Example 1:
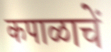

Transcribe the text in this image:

कपाळाचें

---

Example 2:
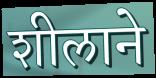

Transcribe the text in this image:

शीलाने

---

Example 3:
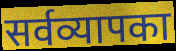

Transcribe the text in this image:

सर्वव्यापका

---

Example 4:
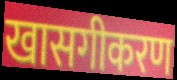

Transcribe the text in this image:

खासगीकरण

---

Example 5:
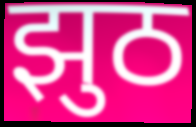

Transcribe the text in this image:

झुठ